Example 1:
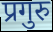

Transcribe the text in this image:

प्रगुरु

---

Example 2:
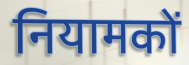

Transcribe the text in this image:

नियामकों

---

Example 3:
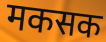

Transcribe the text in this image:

मकसक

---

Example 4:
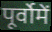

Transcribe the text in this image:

पूर्वोमें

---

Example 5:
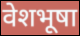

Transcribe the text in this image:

वेशभूषा